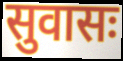
सुवासः